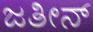
ಜತೀನ್